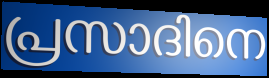
പ്രസാദിനെ